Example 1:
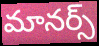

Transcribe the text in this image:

మానర్స్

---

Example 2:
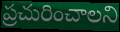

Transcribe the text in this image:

ప్రచురించాలని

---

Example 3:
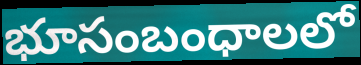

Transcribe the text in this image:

భూసంబంధాలలో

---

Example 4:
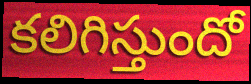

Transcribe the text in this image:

కలిగిస్తుందో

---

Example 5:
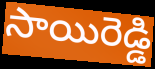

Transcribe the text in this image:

సాయిరెడ్డి